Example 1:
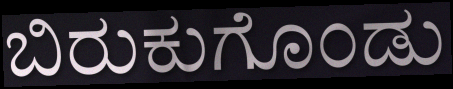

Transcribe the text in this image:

ಬಿರುಕುಗೊಂಡು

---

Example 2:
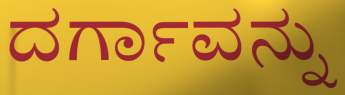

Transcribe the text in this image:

ದರ್ಗಾವನ್ನು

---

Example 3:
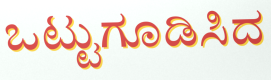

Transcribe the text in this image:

ಒಟ್ಟುಗೂಡಿಸಿದ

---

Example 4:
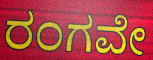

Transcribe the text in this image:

ರಂಗವೇ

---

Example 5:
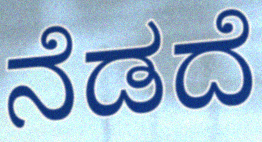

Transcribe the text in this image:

ನೆಡದೆ